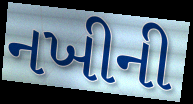
નખીની